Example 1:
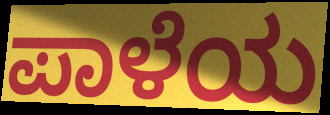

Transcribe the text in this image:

ಪಾಳೆಯ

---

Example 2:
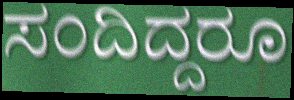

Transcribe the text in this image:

ಸಂದಿದ್ದರೂ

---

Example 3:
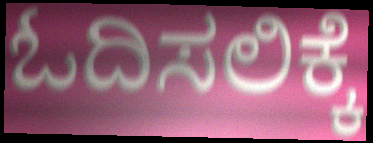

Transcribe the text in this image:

ಓದಿಸಲಿಕ್ಕೆ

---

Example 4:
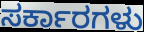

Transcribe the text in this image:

ಸರ್ಕಾರಗಳು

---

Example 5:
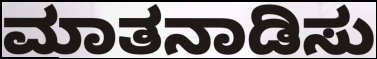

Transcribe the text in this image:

ಮಾತನಾಡಿಸು